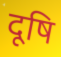
दूषि